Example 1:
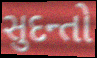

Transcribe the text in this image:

સુદન્તો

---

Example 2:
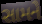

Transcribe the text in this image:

સામને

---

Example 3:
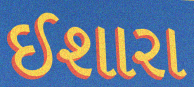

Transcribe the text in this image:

ઈશારા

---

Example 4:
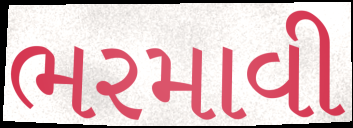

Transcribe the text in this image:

ભરમાવી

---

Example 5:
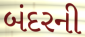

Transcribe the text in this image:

બંદરની